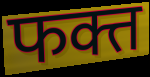
फक्त